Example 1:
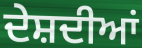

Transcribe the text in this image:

ਦੇਸ਼ਦੀਆਂ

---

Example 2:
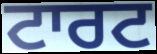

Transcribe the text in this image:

ਟਾਰਟ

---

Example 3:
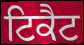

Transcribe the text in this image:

ਟਿਕੈਟ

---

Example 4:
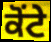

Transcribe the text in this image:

ਕੋਂਟੇ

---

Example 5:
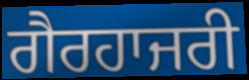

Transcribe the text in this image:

ਗੈਰਹਾਜਰੀ